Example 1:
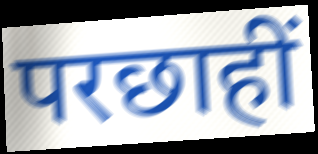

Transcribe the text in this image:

परछाहीं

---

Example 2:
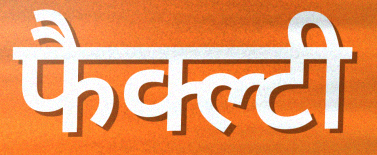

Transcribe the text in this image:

फैक्ल्टी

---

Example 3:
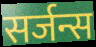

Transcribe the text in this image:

सर्जन्स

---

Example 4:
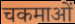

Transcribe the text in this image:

चकमाओं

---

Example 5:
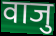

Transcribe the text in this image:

वाजु